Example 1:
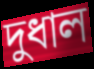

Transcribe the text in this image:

দুধাল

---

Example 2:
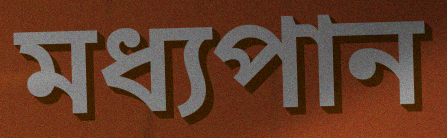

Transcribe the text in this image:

মধ্যপান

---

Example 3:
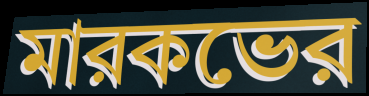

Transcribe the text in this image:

মারকভের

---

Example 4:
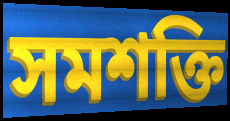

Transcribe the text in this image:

সমশক্তি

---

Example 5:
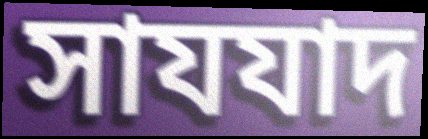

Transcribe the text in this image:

সাযযাদ